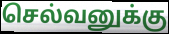
செல்வனுக்கு